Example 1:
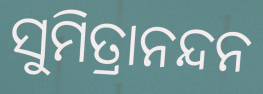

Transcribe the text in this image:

ସୁମିତ୍ରାନନ୍ଦନ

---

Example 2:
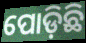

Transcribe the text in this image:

ପୋଡ଼ିଛି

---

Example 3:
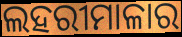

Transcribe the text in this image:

ଲହରୀମାଳାର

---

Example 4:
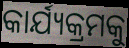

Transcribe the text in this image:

କାର୍ଯ୍ୟକ୍ରମକୁ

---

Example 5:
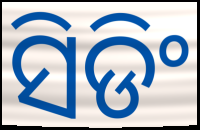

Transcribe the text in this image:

ସିଡିଂ